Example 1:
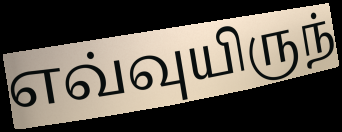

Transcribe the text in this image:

எவ்வுயிருந்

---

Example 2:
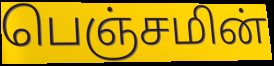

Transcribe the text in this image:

பெஞ்சமின்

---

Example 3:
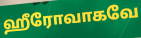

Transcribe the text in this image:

ஹீரோவாகவே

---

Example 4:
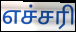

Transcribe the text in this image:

எச்சரி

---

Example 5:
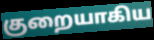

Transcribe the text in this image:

குறையாகிய